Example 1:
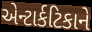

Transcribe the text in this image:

એન્ટાર્કટિકાને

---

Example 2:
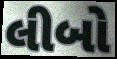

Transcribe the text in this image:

લીબો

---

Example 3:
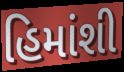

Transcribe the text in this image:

હિમાંશી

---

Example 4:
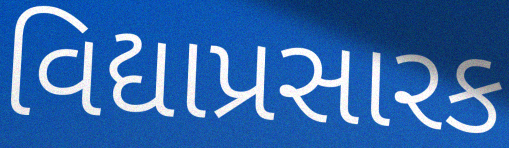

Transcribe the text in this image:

વિદ્યાપ્રસારક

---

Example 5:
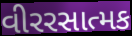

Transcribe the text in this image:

વીરરસાત્મક